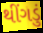
થીંગડું